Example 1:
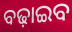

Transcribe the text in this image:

ବଢ଼ାଇବ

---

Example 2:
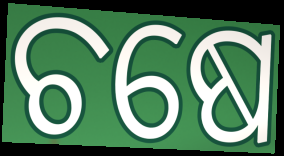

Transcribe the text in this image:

ଚଷେ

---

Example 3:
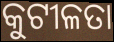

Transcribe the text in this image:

କୁଟୀଳତା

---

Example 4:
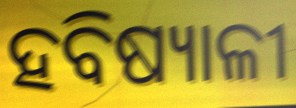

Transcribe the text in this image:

ହବିଷ୍ୟାଳୀ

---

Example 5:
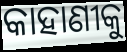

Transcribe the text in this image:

କାହାଣୀକୁ